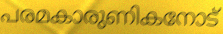
പരമകാരുണികനോട്